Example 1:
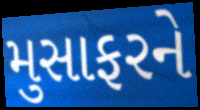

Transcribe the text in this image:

મુસાફરને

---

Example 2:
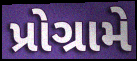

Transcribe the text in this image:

પ્રોગ્રામે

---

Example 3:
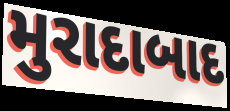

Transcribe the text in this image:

મુરાદાબાદ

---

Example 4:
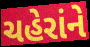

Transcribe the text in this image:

ચહેરાંને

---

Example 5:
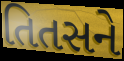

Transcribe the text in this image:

તિતસને